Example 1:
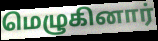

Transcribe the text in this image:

மெழுகினார்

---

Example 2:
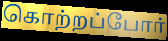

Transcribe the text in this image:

கொற்றப்போர்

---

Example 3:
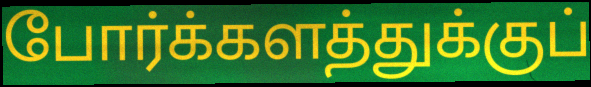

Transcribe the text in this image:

போர்க்களத்துக்குப்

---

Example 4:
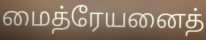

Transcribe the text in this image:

மைத்ரேயனைத்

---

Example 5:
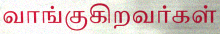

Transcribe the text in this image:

வாங்குகிறவர்கள்